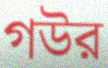
গউর